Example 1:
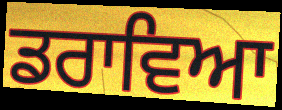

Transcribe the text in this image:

ਡਰਾਵਿਆ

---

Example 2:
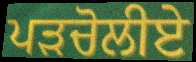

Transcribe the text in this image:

ਪੜਚੋਲੀਏ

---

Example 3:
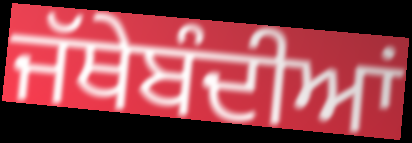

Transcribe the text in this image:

ਜੱਥੇਬੰਦੀਆਂ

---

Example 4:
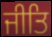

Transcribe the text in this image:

ਜੀਤਿ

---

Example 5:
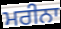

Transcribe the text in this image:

ਮਰੀਨਾ